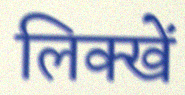
लिक्खें